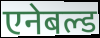
एनेबल्ड